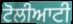
ਟੋਲੀਆਟੀ